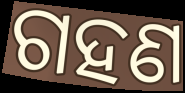
ଗହଣ